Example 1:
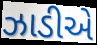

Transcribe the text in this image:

ઝાડીએ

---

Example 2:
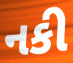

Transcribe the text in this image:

નકી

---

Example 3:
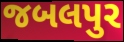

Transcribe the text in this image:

જબલપુર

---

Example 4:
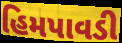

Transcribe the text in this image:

હિમપાવડી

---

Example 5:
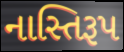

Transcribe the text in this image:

નાસ્તિરૂપ